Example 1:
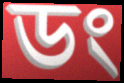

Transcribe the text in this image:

ডং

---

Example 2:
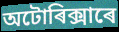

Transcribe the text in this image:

অটোৰিক্সাৰে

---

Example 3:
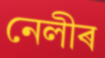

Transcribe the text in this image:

নেলীৰ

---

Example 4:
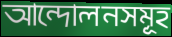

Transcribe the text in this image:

আন্দোলনসমূহ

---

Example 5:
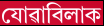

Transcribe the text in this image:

যোৱাবিলাক